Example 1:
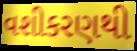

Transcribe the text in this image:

વશીકરણથી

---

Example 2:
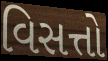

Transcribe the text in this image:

વિસત્તો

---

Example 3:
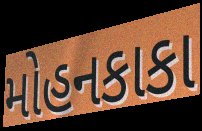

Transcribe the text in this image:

મોહનકાકા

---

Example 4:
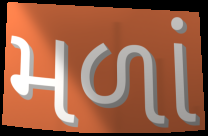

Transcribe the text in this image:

મળાં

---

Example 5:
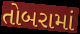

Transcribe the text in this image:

તોબરામાં